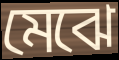
মেঝে